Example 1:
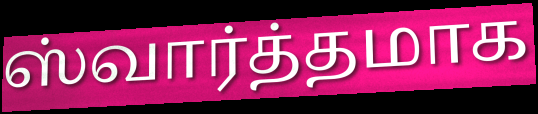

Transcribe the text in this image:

ஸ்வார்த்தமாக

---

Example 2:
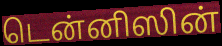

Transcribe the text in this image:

டென்னிஸின்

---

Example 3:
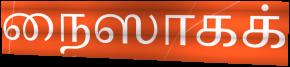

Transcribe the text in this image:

நைஸாகக்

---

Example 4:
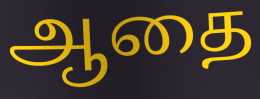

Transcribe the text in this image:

ஆதை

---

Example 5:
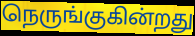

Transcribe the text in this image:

நெருங்குகின்றது